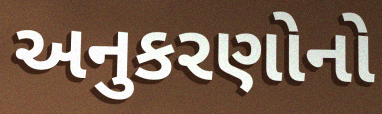
અનુકરણોનો